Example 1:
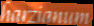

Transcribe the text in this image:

harzianum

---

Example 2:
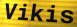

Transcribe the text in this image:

Vikis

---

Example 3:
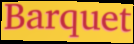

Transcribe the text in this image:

Barquet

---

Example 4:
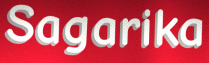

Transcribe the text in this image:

Sagarika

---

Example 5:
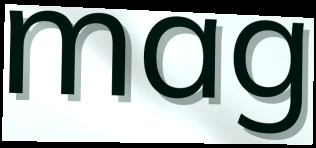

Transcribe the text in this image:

mag